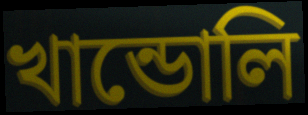
খান্ডোলি